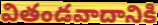
వితండవాదానికి